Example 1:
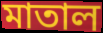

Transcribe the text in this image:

মাতাল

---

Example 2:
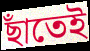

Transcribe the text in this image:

ছাঁতেই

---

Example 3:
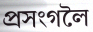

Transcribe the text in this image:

প্ৰসংগলৈ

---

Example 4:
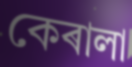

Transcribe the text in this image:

কেৰালা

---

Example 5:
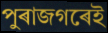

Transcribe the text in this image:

পুৰাজগৰেই